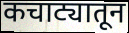
कचाट्यातून